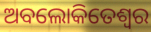
ଅବଲୋକିତେଶ୍ୱର